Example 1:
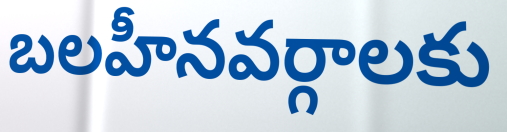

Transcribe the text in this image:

బలహీనవర్గాలకు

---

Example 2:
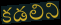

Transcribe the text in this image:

కడలిని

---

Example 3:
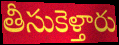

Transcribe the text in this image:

తీసుకెళ్తారు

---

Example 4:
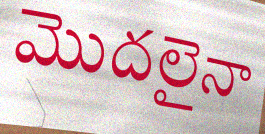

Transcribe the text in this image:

మొదలైనా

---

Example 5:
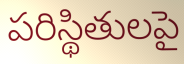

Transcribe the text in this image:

పరిస్థితులపై